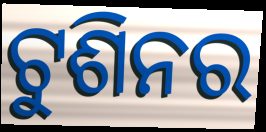
ଟୁଶିନର